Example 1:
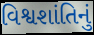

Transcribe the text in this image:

વિશ્વશાંતિનું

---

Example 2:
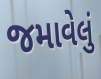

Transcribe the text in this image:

જમાવેલું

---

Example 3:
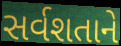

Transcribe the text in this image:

સર્વશતાને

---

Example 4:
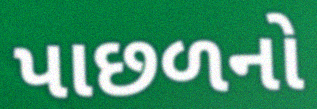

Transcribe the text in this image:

પાછળનો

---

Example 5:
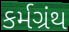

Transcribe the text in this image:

કર્મગ્રંથ